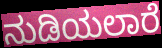
ನುಡಿಯಲಾರೆ